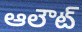
ఆలౌట్